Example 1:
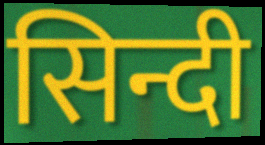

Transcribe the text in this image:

सिन्दी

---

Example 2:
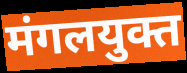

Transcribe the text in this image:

मंगलयुक्त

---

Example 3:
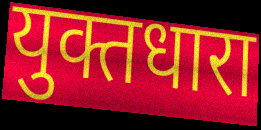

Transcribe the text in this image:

युक्तधारा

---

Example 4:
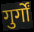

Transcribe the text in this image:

गुर्गों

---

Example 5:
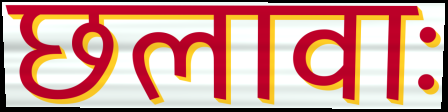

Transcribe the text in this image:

छलावाः